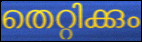
തെറ്റിക്കും